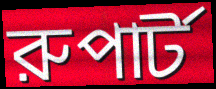
রুপার্ট